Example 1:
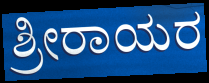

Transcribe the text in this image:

ಶ್ರೀರಾಯರ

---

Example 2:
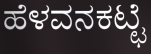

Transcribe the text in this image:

ಹೆಳವನಕಟ್ಟೆ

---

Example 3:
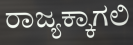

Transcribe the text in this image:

ರಾಜ್ಯಕ್ಕಾಗಲಿ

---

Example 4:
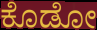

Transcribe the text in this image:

ಕೊಡೋ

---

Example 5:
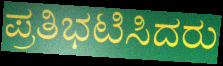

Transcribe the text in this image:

ಪ್ರತಿಭಟಿಸಿದರು